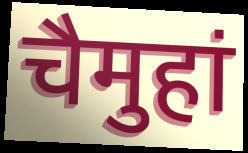
चैमुहां